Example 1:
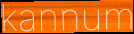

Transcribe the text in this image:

kannum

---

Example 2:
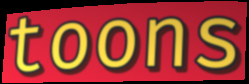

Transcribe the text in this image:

toons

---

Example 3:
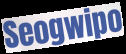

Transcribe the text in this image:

Seogwipo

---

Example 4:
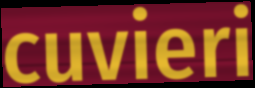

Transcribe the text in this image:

cuvieri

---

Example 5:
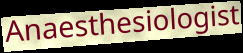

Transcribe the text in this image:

Anaesthesiologist